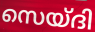
സെയ്ദി